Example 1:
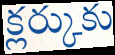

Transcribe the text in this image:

క్లర్కుకు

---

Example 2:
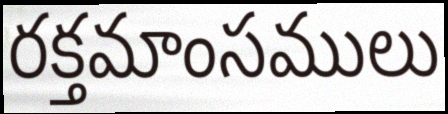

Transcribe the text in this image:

రక్తమాంసములు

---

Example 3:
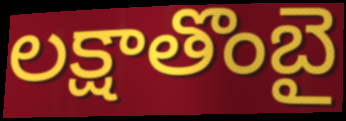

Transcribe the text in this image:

లక్షాతొంబై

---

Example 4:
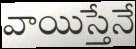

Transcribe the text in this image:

వాయిస్తేనే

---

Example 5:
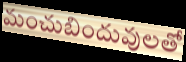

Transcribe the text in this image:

మంచుబిందువులతో